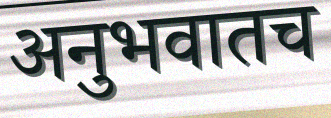
अनुभवातच